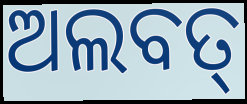
ଅଲବତ୍